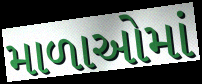
માળાઓમાં